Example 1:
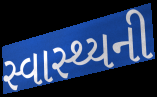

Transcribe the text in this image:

સ્વાસ્થ્યની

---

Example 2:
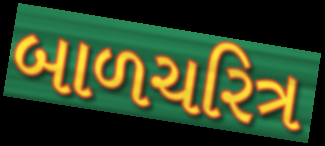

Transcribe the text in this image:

બાળચરિત્ર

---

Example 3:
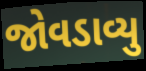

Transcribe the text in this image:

જોવડાવ્યુ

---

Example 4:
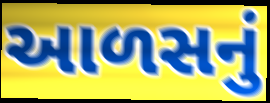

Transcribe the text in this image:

આળસનું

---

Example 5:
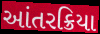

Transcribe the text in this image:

આંતરક્રિયા